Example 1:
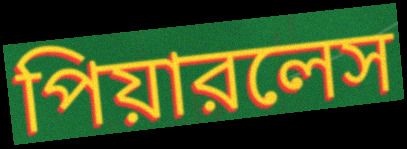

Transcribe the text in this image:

পিয়ারলেস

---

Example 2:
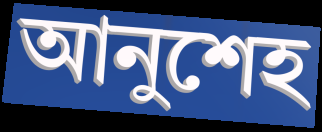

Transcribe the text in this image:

আনুশেহ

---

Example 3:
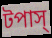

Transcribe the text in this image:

টপাস্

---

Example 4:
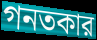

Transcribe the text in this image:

গনতকার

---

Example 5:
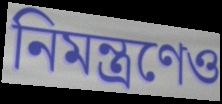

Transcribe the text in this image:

নিমন্ত্রণেও